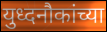
युध्दनौकांच्या